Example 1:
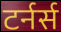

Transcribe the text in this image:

टर्नर्स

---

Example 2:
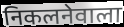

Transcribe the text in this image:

निकलनेवाला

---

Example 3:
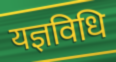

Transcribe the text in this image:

यज्ञविधि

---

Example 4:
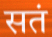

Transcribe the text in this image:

सतं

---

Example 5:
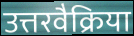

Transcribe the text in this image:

उत्तरवैक्रिया